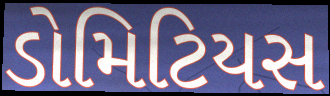
ડોમિટિયસ